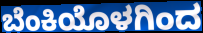
ಬೆಂಕಿಯೊಳಗಿಂದ